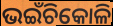
ଭଇଁଚିକୋଳି